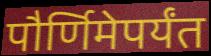
पौर्णिमेपर्यंत